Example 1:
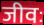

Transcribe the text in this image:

जीवः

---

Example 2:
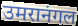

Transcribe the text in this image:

उमरानंगल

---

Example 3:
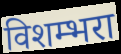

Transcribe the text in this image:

विशम्भरा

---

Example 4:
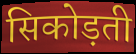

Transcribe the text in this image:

सिकोड़ती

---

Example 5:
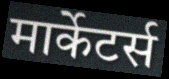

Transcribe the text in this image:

मार्केटर्स